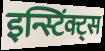
इन्स्टिंक्ट्स